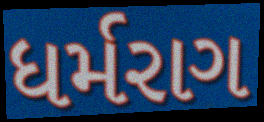
ધર્મરાગ